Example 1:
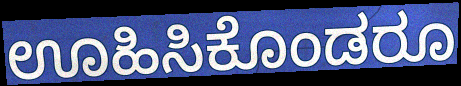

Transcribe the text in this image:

ಊಹಿಸಿಕೊಂಡರೂ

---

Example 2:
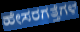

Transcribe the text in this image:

ಹೇಸರಗತ್ತೆಗಳ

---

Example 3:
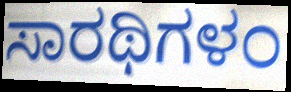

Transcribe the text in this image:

ಸಾರಥಿಗಳಂ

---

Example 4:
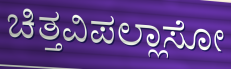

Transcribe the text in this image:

ಚಿತ್ತವಿಪಲ್ಲಾಸೋ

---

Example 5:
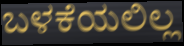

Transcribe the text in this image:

ಬಳಕೆಯಲಿಲ್ಲ